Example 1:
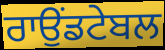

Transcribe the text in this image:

ਰਾਉਂਡਟੇਬਲ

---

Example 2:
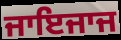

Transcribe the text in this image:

ਜਾਇਜਾਜ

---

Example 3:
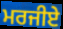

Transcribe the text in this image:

ਮਰਜੀਏ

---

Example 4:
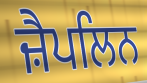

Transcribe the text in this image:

ਜ਼ੈਪਲਿਨ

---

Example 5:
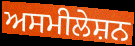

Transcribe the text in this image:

ਅਸਮੀਲੇਸ਼ਨ